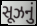
સૂઝનું